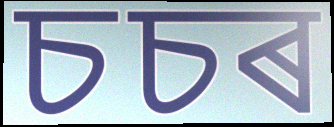
চচৰ